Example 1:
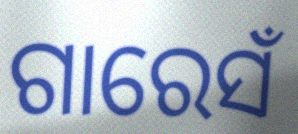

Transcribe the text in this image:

ଗାରେସଁ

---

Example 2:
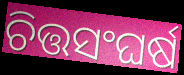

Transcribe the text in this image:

ଚିତ୍ତସଂଘର୍ଷ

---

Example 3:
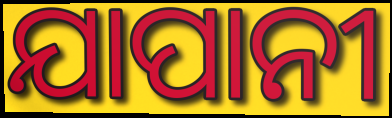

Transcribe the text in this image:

ଯାପାନୀ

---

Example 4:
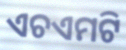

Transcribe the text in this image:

ଏଚଏମଟି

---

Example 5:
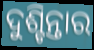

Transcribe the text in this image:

ଦୁଶ୍ଚିନ୍ତାର